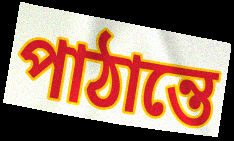
পাঠান্তে